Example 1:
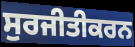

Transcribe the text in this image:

ਸੁਰਜੀਤੀਕਰਨ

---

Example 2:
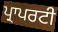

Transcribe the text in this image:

ਪ੍ਰਾਪਰਟੀ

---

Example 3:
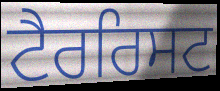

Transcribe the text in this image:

ਟੈਰਰਿਸਟ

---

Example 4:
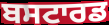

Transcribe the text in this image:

ਬਸਟਾਰਡ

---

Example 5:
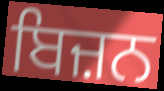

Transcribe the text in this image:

ਬਿਜ਼ਨ